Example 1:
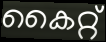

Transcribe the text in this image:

കൈറ്റ്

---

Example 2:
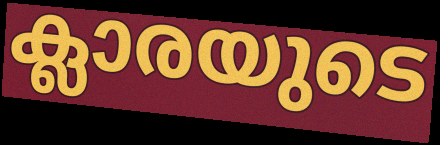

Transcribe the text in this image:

ക്ലാരയുടെ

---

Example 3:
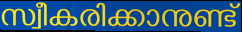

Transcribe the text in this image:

സ്വീകരിക്കാനുണ്ട്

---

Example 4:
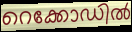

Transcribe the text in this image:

റെക്കോഡിൽ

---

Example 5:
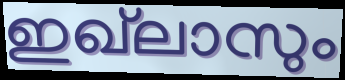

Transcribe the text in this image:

ഇഖ്‌ലാസും